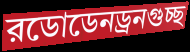
রডোডেনড্রনগুচ্ছ